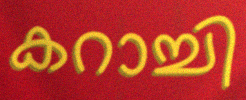
കറാച്ചി